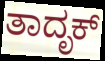
ತಾದೃಕ್